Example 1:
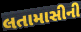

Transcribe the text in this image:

લતામાસીની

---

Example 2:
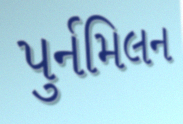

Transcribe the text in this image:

પુર્નમિલન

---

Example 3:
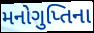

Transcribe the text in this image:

મનોગુપ્તિના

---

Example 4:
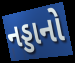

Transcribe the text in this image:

નડ્ડાનો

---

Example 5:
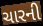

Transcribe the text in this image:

ચારની